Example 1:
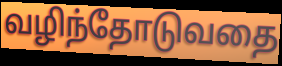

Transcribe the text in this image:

வழிந்தோடுவதை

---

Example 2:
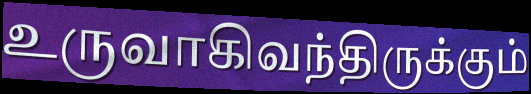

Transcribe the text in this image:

உருவாகிவந்திருக்கும்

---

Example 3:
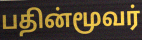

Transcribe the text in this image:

பதின்மூவர்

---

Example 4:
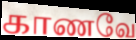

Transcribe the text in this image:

காணவே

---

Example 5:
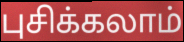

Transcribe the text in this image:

புசிக்கலாம்